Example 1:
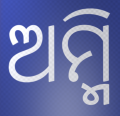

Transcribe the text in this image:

ଅମ୍ମି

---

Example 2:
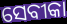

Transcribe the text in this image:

ସେବୀକା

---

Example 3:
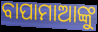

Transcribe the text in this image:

ବାପାମାଆଙ୍କୁ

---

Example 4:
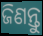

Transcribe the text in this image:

ଜିଣନ୍ତୁ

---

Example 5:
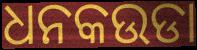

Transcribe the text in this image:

ଧନକଉଡା